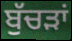
ਬੁੱਚੜਾਂ